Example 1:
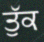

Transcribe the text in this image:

ਤੁੱਕ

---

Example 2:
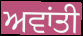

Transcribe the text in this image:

ਅਵਾਂਤੀ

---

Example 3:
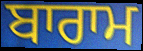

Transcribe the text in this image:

ਬਾਰਾਮ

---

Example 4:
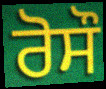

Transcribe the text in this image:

ਰੋਸੌ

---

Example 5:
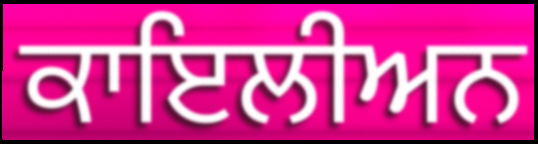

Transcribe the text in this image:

ਕਾਇਲੀਅਨ